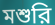
মশুরি